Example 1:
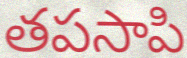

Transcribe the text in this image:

తపసాపి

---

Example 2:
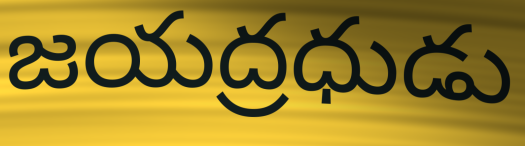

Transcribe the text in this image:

జయద్రధుడు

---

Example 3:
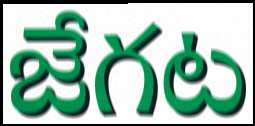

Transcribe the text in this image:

జేగట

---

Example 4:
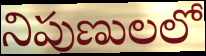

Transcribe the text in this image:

నిపుణులలో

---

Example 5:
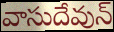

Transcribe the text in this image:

వాసుదేవున్